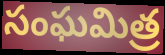
సంఘమిత్ర